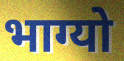
भाग्यो